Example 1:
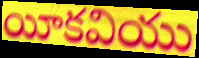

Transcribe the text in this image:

యీకవియు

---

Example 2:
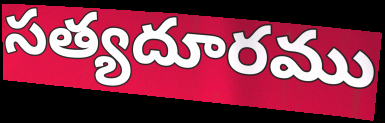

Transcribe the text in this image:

సత్యదూరము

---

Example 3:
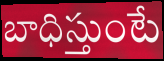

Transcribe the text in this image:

బాధిస్తుంటే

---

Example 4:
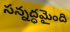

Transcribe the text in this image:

సన్నద్ధమైంది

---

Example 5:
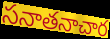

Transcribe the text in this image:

సనాతనాచార